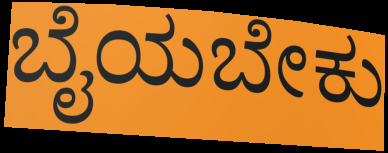
ಬೈಯಬೇಕು